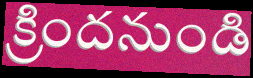
క్రిందనుండి